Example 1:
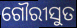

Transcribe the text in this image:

ଗୌରୀସୁତ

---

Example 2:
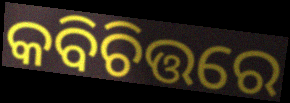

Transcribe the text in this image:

କବିଚିତ୍ତରେ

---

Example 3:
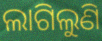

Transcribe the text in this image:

ଲାଗିଲୁଣି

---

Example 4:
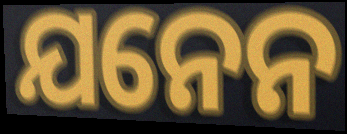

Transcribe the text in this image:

ଯନେନ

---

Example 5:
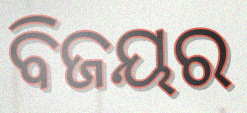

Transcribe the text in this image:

ବିଜୟର